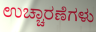
ಉಚ್ಚಾರಣೆಗಳು